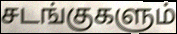
சடங்குகளும்